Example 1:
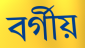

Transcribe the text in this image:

বৰ্গীয়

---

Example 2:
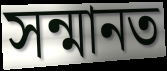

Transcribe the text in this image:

সন্মানত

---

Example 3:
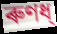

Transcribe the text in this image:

ৰুণধ্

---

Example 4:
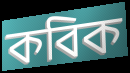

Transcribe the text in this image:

কবিক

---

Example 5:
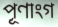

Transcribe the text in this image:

পূণাংগ